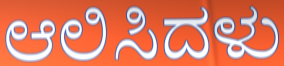
ಆಲಿಸಿದಳು